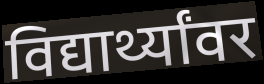
विद्यार्थ्यांवर